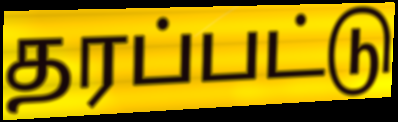
தரப்பட்டு